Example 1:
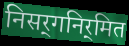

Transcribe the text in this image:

निसर्गनिर्मित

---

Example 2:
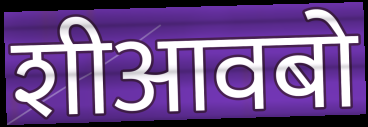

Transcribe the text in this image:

शीआवबो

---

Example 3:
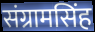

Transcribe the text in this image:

संग्रामसिंह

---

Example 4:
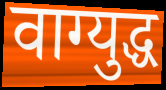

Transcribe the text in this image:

वाग्युद्ध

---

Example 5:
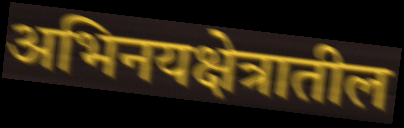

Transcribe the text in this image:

अभिनयक्षेत्रातील